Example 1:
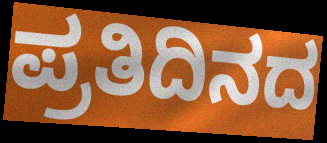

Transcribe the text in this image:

ಪ್ರತಿದಿನದ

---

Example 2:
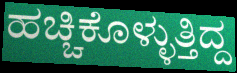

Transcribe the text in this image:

ಹಚ್ಚಿಕೊಳ್ಳುತ್ತಿದ್ದ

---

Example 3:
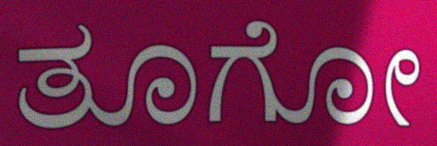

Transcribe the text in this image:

ತೂಗೋ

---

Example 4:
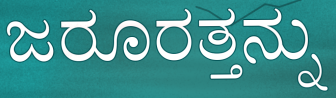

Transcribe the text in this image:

ಜರೂರತ್ತನ್ನು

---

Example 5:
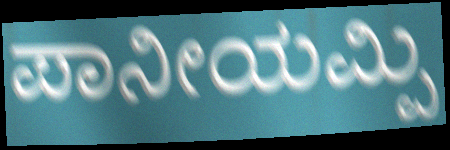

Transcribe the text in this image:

ಪಾನೀಯಮ್ಪಿ